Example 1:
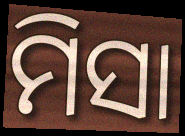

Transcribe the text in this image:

ମିସା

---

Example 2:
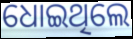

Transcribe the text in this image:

ଧୋଇଥିଲେ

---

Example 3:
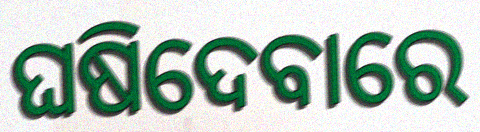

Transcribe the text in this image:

ଘଷିଦେବାରେ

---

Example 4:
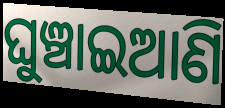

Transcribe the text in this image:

ଘୁଞ୍ଚାଇଆଣି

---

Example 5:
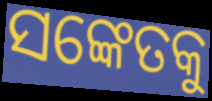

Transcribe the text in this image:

ସଙ୍କେତକୁ